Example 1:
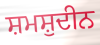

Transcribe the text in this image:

ਸ਼ਮਸ਼ੁਦੀਨ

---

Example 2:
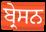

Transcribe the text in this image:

ਬ੍ਰੇਸਨ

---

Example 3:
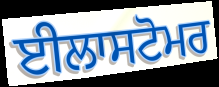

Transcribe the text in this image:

ਈਲਾਸਟੋਮਰ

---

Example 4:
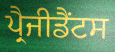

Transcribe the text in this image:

ਪ੍ਰੈਜੀਡੈਂਟਸ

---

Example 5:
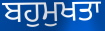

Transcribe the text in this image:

ਬਹੁਮੁਖਤਾ